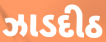
ઝાડદીઠ